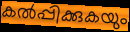
കൽപ്പിക്കുകയും